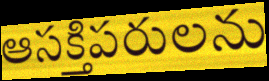
ఆసక్తిపరులను